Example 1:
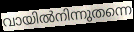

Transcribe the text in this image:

വായിൽനിന്നുതന്നെ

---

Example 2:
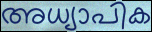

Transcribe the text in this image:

അധ്യാപിക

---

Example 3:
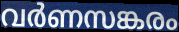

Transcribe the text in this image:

വർണസങ്കരം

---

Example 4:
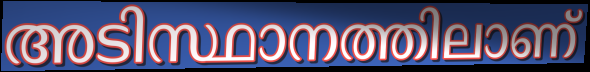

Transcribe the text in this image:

അടിസ്ഥാനത്തിലാണ്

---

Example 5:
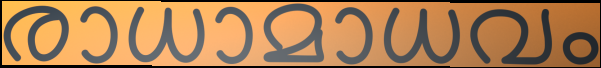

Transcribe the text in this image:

രാധാമാധവം